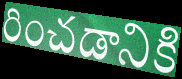
రించడానికి